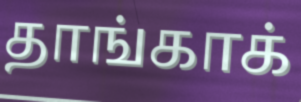
தாங்காக்